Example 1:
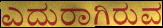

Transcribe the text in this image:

ಎದುರಾಗಿರುವ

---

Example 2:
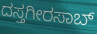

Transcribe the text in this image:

ದಸ್ತಗೀರಸಾಬ್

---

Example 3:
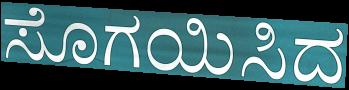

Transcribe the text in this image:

ಸೊಗಯಿಸಿದ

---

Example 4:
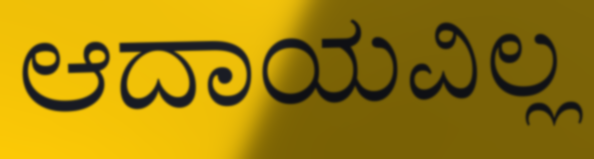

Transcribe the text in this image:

ಆದಾಯವಿಲ್ಲ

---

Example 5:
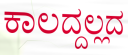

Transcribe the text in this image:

ಕಾಲದ್ದಲ್ಲದ